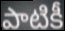
పాటికీ